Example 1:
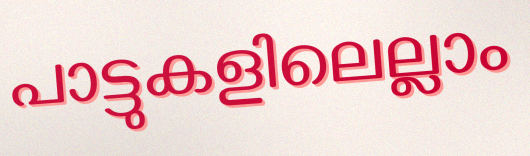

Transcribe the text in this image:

പാട്ടുകളിലെല്ലാം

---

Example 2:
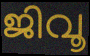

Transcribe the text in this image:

ജിവൂ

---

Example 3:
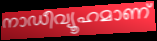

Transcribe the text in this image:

നാഡീവ്യൂഹമാണ്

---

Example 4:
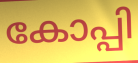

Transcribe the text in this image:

കോപ്പി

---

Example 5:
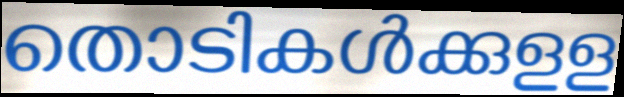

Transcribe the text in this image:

തൊടികൾക്കുളള